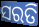
ସରତି